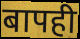
बापही